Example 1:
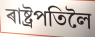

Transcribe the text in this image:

ৰাষ্ট্ৰপতিলৈ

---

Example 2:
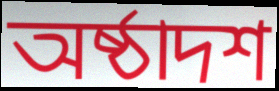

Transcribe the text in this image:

অষ্ঠাদশ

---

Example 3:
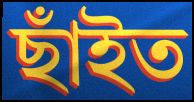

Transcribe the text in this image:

ছাঁইত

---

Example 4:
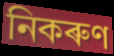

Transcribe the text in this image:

নিকৰুণ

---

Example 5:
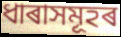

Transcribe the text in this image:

ধাৰাসমূহৰ